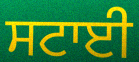
ਸਟਾਈ